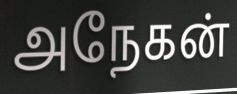
அநேகன்